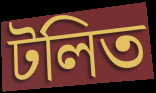
টলিত